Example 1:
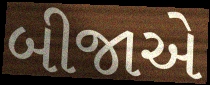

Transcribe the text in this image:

બીજાએ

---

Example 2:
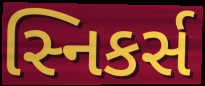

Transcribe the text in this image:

સ્નિકર્સ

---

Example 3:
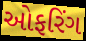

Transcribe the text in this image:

ઓફરિંગ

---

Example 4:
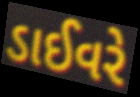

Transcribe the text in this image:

ડાઈવરે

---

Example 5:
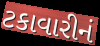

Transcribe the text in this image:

ટકાવારીનં